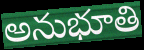
అనుభూతి